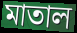
মাতাল